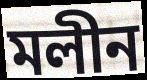
মলীন